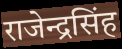
राजेन्द्रसिंह